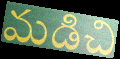
మడిచి